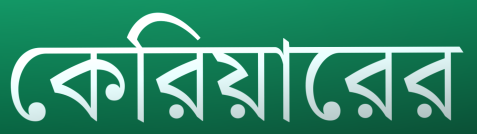
কেরিয়ারের